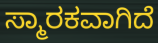
ಸ್ಮಾರಕವಾಗಿದೆ